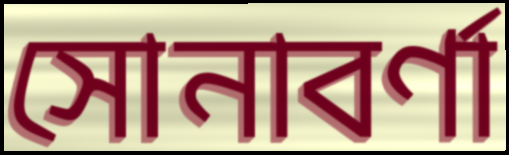
সোনাবর্ণা